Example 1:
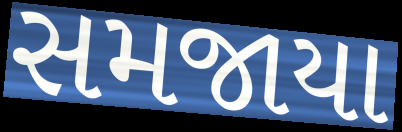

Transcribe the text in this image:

સમજાયા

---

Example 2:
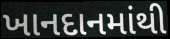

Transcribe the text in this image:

ખાનદાનમાંથી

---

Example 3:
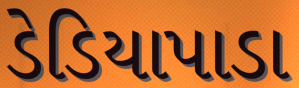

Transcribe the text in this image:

ડેડિયાપાડા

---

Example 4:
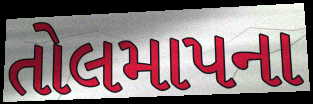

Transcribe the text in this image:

તોલમાપના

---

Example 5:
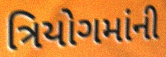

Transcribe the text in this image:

ત્રિયોગમાંની